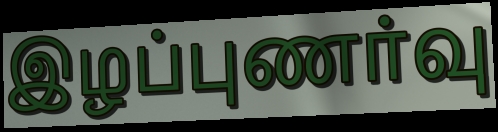
இழப்புணர்வு